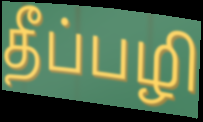
தீப்பழி